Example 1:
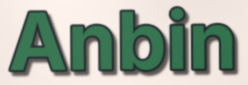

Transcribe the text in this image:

Anbin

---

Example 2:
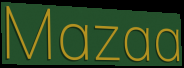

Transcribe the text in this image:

Mazaa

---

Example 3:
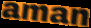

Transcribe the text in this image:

aman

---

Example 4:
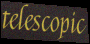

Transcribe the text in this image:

telescopic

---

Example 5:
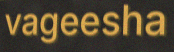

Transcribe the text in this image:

vageesha